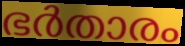
ഭർതാരം